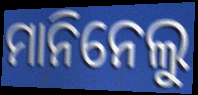
ମାନିନେଲୁ